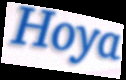
Hoya